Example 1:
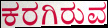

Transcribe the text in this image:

ಕರಗಿರುವ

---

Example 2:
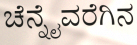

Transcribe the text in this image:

ಚೆನ್ನೈವರೆಗಿನ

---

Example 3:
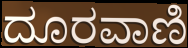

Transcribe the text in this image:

ದೂರವಾಣಿ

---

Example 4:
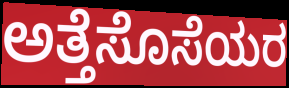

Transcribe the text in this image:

ಅತ್ತೆಸೊಸೆಯರ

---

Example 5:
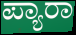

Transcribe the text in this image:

ಪ್ಯಾರಾ